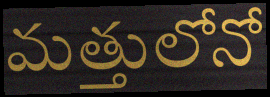
మత్తులోనో